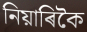
নিয়াৰিকৈ